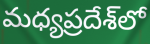
మధ్యప్రదేశ్‌లో